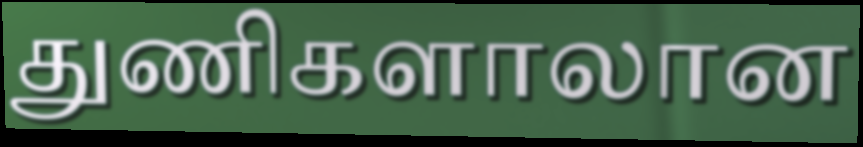
துணிகளாலான